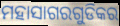
ମହାସାଗରଗୁଡିକର